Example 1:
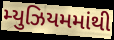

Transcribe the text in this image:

મ્યુઝિયમમાંથી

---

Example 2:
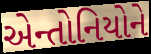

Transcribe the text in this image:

એન્તોનિયોને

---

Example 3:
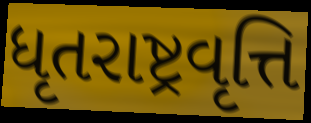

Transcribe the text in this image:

ધૃતરાષ્ટ્રવૃત્તિ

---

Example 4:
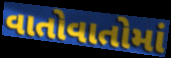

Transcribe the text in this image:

વાતોવાતોમાં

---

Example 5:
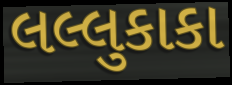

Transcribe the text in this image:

લલ્લુકાકા